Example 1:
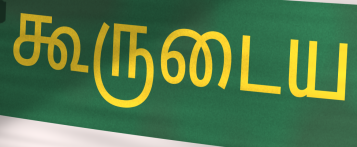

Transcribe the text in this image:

கூருடைய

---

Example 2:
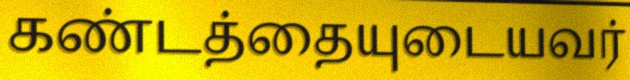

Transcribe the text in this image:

கண்டத்தையுடையவர்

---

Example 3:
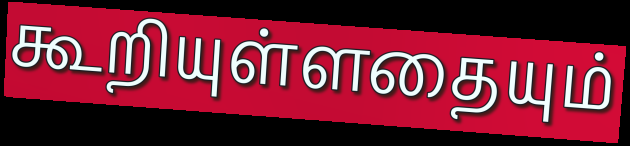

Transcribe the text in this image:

கூறியுள்ளதையும்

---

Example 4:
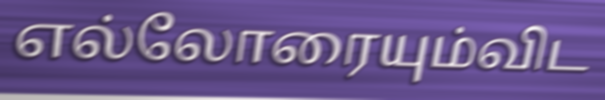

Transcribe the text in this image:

எல்லோரையும்விட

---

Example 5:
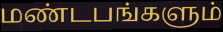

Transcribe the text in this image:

மண்டபங்களும்